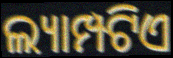
ଲ୍ୟାମ୍ପଟିଏ